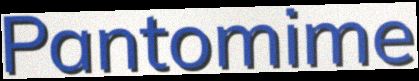
Pantomime